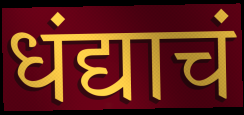
धंद्याचं